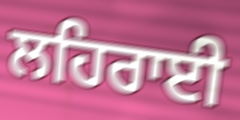
ਲਹਿਰਾਈ